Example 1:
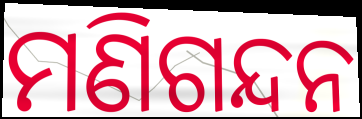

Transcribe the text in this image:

ମଣିଗନ୍ଦନ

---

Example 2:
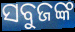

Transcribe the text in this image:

ସବୁଜଙ୍କ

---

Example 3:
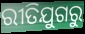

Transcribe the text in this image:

ରୀତିଯୁଗରୁ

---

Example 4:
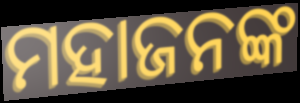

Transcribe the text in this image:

ମହାଜନଙ୍କ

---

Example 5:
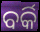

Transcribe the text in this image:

ବର୍କି